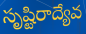
సృష్టిరాద్యేవ